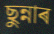
ছুন্নাৰ